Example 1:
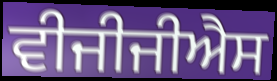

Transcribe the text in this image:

ਵੀਜੀਜੀਐਸ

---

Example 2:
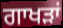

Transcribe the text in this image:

ਗਾਖੜਾਂ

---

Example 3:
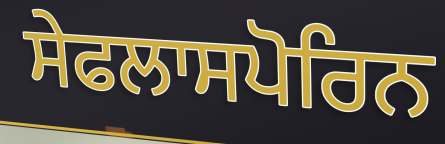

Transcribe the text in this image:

ਸੇਫਲਾਸਪੋਰਿਨ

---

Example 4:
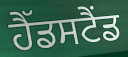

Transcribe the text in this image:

ਹੈੱਡਸਟੈਂਡ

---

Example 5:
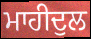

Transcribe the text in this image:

ਮਾਹੀਦੁਲ